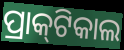
ପ୍ରାକ୍‌ଟିକାଲ